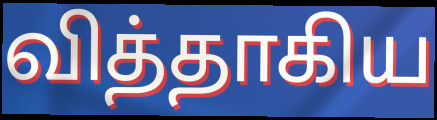
வித்தாகிய